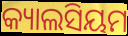
କ୍ୟାଲସିୟମ